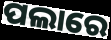
ପଲାରେ